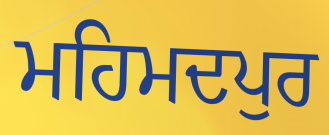
ਮਹਿਮਦਪੁਰ